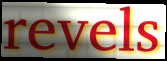
revels